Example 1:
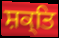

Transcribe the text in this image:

ਸ਼ਕ੍ਤਿ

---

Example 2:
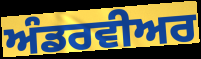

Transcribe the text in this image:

ਅੰਡਰਵੀਅਰ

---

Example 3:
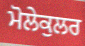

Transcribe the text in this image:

ਮੋਲੇਕੁਲਰ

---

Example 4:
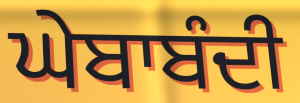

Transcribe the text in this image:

ਘੇਬਾਬੰਦੀ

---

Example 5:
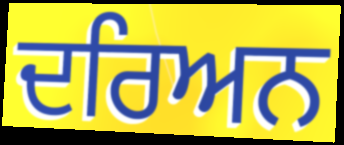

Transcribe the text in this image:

ਦਰਿਅਨ